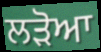
ਲੜੋਆ